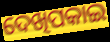
ଦେଖିପକାଇ